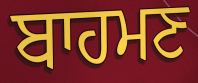
ਬਾਹਮਣ